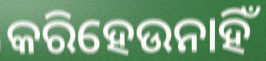
କରିହେଉନାହିଁ